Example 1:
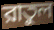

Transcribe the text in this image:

রাতুল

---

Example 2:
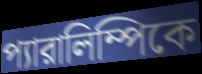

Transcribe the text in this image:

প্যারালিম্পিকে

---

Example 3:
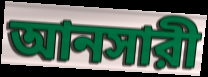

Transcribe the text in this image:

আনসারী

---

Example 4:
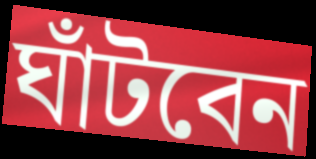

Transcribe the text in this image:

ঘাঁটবেন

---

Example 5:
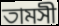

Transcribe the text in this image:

তামসী